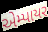
એમ્પાયર